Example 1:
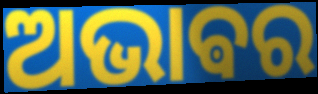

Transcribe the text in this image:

ଅଭାଵର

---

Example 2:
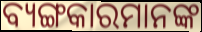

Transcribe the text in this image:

ବ୍ୟଙ୍ଗକାରମାନଙ୍କ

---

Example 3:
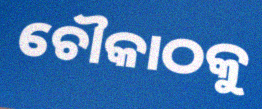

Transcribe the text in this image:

ଚୌକାଠକୁ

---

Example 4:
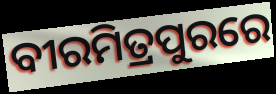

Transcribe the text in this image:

ବୀରମିତ୍ରପୁରରେ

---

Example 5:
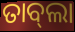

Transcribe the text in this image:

ତାବ୍‌ଲା